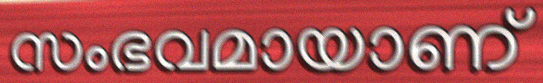
സംഭവമായാണ്